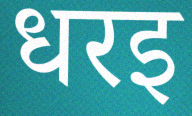
धरइ